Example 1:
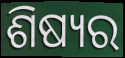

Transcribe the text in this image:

ଶିଷ୍ୟର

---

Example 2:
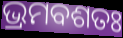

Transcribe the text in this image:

ଭ୍ରମବଶତଃ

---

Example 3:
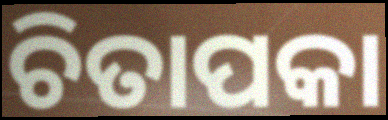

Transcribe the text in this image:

ଚିତାପକା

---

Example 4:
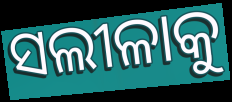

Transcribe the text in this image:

ସଲୀଳାକୁ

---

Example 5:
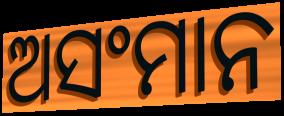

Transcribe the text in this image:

ଅସଂମାନ